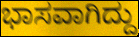
ಭಾಸವಾಗಿದ್ದು